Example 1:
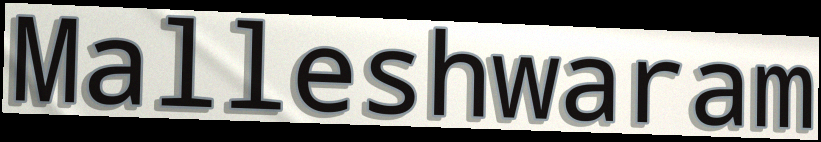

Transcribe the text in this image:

Malleshwaram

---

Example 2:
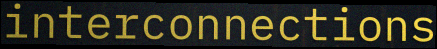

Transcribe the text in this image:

interconnections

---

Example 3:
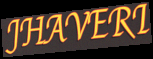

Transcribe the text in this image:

JHAVERI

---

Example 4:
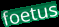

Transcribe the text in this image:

foetus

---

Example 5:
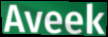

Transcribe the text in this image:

Aveek